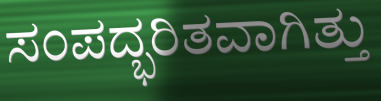
ಸಂಪದ್ಭರಿತವಾಗಿತ್ತು